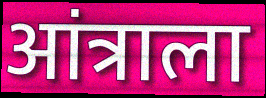
आंत्राला